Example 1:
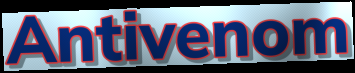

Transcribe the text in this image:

Antivenom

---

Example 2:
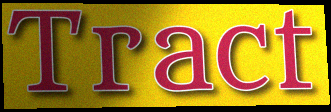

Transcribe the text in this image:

Tract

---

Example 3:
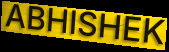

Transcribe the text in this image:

ABHISHEK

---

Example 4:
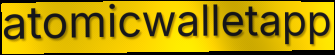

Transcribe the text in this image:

atomicwalletapp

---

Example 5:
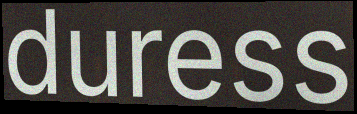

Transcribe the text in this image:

duress